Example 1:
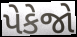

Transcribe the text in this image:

પેકેજો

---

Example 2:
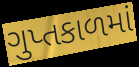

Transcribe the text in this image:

ગુપ્તકાળમાં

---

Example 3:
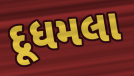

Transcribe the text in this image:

દૂધમલા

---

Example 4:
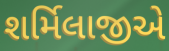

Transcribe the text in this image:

શર્મિલાજીએ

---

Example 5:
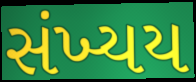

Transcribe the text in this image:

સંખ્યય